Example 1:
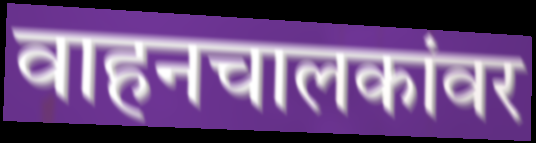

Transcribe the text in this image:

वाहनचालकांवर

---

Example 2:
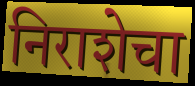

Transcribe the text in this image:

निराशेचा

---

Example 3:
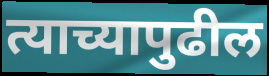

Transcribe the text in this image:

त्याच्यापुढील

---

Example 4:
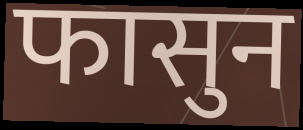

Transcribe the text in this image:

फासुन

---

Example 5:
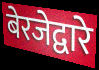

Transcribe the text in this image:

बेरजेद्वारे